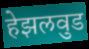
हेझलवुड